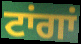
ਟਾਂਗਾਂ